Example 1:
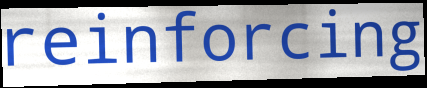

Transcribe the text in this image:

reinforcing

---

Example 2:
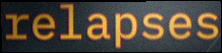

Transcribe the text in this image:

relapses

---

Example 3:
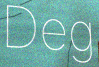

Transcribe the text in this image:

Deg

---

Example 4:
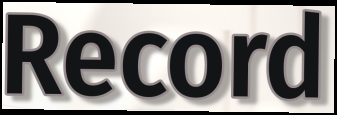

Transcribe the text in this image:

Record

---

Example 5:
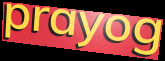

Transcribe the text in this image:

prayog